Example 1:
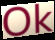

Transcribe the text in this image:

Ok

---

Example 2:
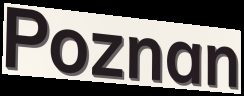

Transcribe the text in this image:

Poznan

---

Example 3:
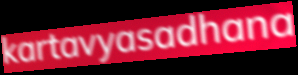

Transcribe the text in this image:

kartavyasadhana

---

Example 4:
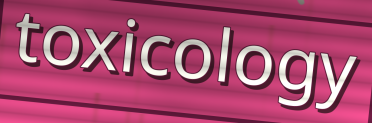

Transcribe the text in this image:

toxicology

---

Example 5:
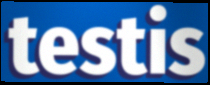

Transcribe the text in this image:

testis